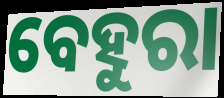
ବେହୁରା